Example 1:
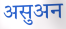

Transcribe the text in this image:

असुअन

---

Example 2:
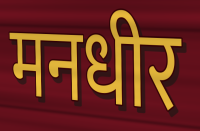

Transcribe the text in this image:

मनधीर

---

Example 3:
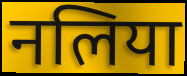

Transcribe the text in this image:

नलिया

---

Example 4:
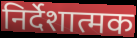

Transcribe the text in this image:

निर्देशात्मक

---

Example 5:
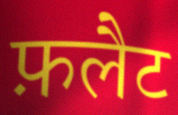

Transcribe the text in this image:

फ़लैट